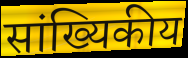
सांख्यिकीय